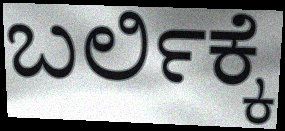
ಬರ್ಲಿಕ್ಕೆ